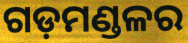
ଗଡ଼ମଣ୍ଡଳର